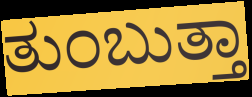
ತುಂಬುತ್ತಾ